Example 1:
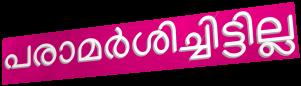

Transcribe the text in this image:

പരാമർശിച്ചിട്ടില്ല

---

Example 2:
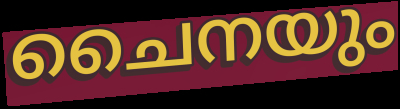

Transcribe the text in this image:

ചൈനയും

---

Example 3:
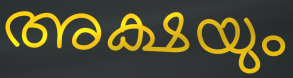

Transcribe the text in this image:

അക്ഷയും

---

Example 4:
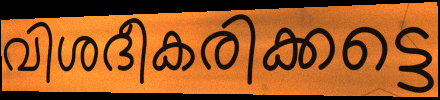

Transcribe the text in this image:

വിശദീകരിക്കട്ടെ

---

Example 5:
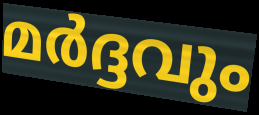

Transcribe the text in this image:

മർദ്ദവും